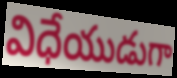
విధేయుడుగా